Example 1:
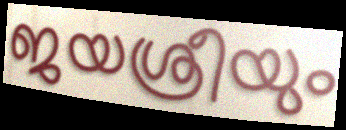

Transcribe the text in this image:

ജയശ്രീയും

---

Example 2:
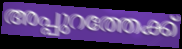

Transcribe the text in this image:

അപ്പുറത്തേക്ക്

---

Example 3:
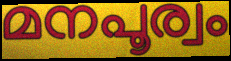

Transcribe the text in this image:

മനപൂര്വം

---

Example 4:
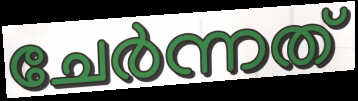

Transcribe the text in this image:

ചേർന്നത്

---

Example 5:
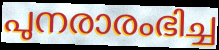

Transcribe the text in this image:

പുനരാരംഭിച്ച